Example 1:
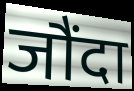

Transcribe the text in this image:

जौंदा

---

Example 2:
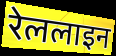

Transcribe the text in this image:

रेललाइन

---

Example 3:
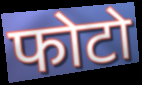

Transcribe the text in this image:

फोटो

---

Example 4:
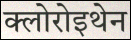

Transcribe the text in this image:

क्लोरोइथेन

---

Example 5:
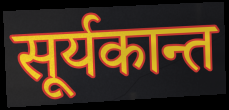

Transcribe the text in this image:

सूर्यकान्त